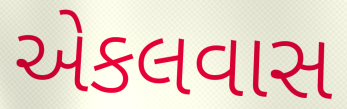
એકલવાસ